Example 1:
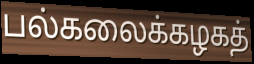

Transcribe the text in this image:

பல்கலைக்கழகத்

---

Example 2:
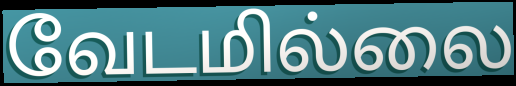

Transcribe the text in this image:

வேடமில்லை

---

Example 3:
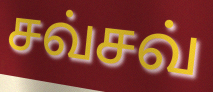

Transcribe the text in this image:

சவ்சவ்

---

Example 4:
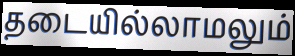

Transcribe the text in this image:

தடையில்லாமலும்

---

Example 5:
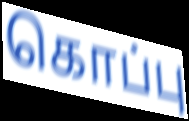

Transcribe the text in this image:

கொப்பு